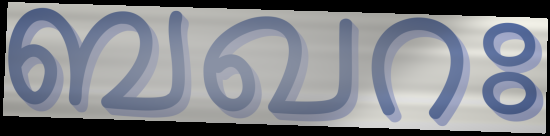
ബഖറഃ